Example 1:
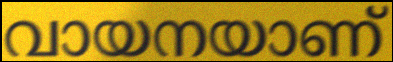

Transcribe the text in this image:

വായനയാണ്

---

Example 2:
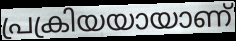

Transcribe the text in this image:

പ്രക്രിയയായാണ്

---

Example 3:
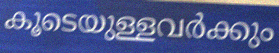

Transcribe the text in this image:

കൂടെയുള്ളവർക്കും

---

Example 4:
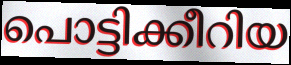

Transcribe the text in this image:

പൊട്ടിക്കീറിയ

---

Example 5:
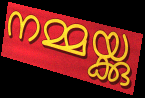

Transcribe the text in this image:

നമ്മയ്ക്കു